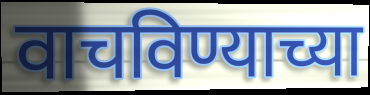
वाचविण्याच्या